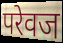
परेवज